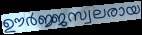
ഊർജ്ജസ്വലരായ